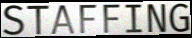
STAFFING